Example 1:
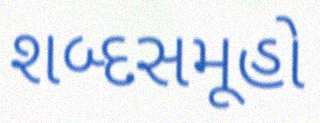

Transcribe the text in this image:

શબ્દસમૂહો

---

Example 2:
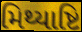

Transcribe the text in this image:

મિથ્યાષ્ટિ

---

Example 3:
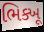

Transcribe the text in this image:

ભિક્ખૂ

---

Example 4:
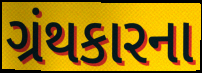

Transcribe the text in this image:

ગ્રંથકારના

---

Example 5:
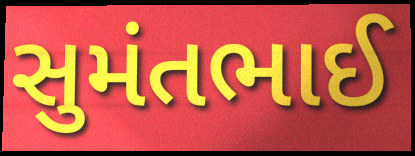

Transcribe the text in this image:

સુમંતભાઈ